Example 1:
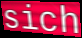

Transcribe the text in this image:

sich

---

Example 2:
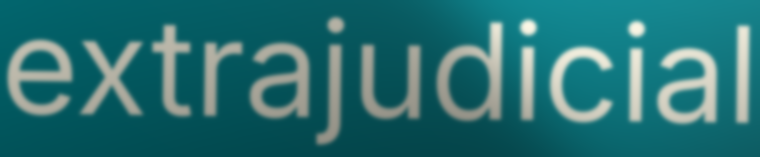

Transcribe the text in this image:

extrajudicial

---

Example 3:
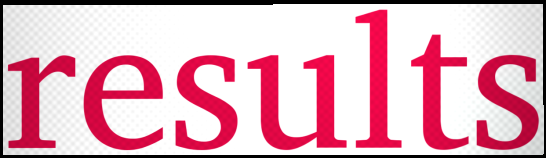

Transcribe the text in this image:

results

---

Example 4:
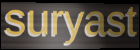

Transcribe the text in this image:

suryast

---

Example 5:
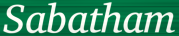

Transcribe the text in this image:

Sabatham